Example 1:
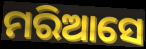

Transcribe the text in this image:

ମରିଆସେ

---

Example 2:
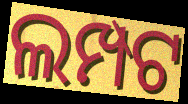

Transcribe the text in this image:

ଲମ୍ପଟ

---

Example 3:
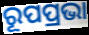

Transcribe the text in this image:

ରୂପପ୍ରଭା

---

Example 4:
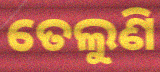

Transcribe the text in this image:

ତେଲୁଣି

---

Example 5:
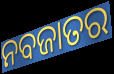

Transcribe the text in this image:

ନବଜାତର